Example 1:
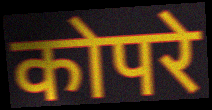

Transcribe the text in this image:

कोपरे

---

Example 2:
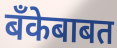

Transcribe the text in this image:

बँकेबाबत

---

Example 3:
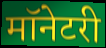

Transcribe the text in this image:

मॉनेटरी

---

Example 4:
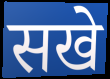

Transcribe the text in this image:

सखे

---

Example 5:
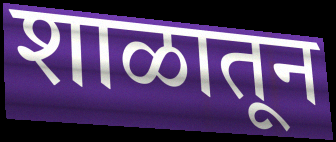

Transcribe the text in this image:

शाळातून